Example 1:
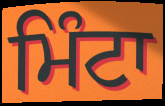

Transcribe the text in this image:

ਮਿੰਟਾ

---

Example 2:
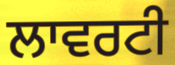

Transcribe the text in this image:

ਲਾਵਰਟੀ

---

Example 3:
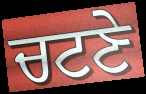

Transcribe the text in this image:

ਚਟਣੇ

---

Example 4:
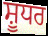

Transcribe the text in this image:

ਸ਼ੂਧਰ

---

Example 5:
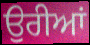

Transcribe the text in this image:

ਉਰੀਆਂ